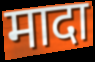
मादा